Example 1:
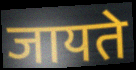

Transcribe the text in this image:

जायते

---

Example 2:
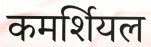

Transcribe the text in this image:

कमर्शियल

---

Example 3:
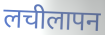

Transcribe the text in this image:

लचीलापन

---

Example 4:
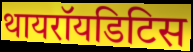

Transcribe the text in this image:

थायरॉयडिटिस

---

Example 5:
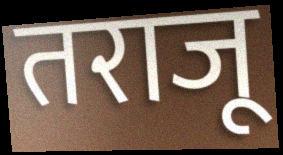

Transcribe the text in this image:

तराजू